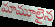
మామూలైన